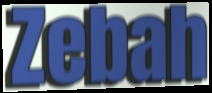
Zebah